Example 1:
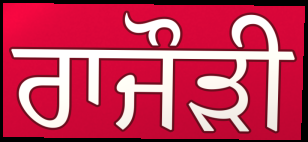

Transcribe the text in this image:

ਰਾਜੌੜੀ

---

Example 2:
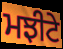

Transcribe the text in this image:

ਮਝੀਟੇ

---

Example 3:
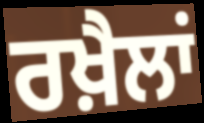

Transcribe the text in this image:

ਰਖ਼ੈਲਾਂ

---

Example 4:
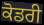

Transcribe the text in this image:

ਕੋਡਰੀ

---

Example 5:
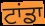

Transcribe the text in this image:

ਟਾਂਡਾ